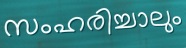
സംഹരിച്ചാലും